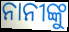
ନାନୀଙ୍କୁ